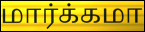
மார்க்கமா